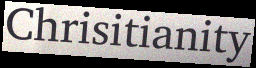
Chrisitianity